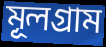
মূলগ্রাম